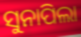
ସୁନାପିଲା